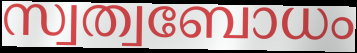
സ്വത്വബോധം